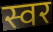
स्‍वर